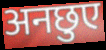
अनछुए